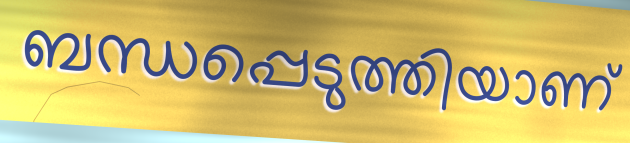
ബന്ധപ്പെടുത്തിയാണ്